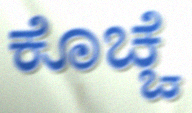
ಕೊಚ್ಚೆ